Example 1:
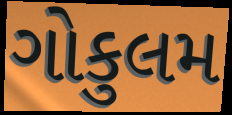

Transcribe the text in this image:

ગોકુલમ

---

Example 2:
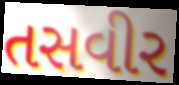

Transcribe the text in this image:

તસવીર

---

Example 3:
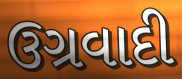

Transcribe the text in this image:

ઉગ્રવાદી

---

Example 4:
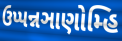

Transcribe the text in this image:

ઉપ્પન્નઞાણોમ્હિ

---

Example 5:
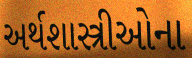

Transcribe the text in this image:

અર્થશાસ્ત્રીઓના